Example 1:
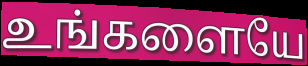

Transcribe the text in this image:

உங்களையே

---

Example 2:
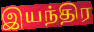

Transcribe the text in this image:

இயந்திர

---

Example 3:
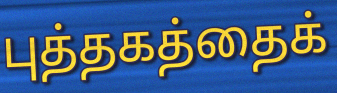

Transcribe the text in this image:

புத்தகத்தைக்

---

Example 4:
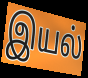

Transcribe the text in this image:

இயல்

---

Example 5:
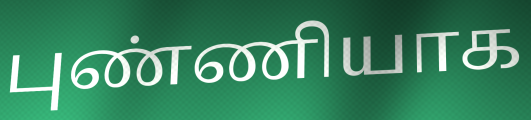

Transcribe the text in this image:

புண்ணியாக